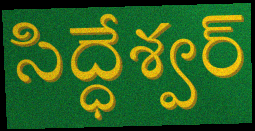
సిద్ధేశ్వర్